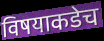
विषयाकडेच